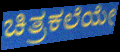
ಚಿತ್ರಕಲೆಯೇ